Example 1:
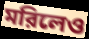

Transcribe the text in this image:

মরিলেও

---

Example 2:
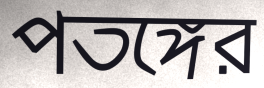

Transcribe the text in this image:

পতঙ্গের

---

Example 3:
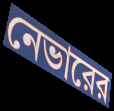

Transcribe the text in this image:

নেভারের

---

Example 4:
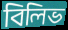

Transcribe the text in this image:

বিলিভ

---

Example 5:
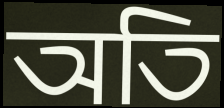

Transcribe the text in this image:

অতি